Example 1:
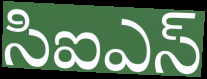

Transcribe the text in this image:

సిఐఎస్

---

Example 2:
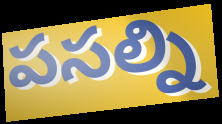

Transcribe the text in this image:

పసల్ని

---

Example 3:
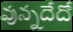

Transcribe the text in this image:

వున్నదేదో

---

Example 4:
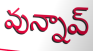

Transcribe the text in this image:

వున్నావ్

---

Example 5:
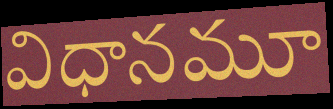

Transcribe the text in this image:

విధానమూ